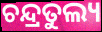
ଚନ୍ଦ୍ରତୁଲ୍ୟ